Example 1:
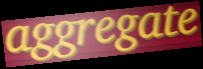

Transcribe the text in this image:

aggregate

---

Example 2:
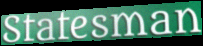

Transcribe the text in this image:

Statesman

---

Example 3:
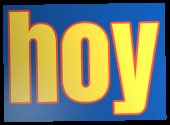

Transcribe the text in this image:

hoy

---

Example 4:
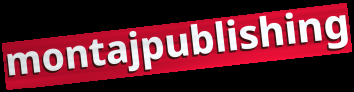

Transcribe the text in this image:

montajpublishing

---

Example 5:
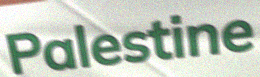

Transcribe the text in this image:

Palestine